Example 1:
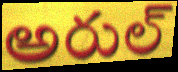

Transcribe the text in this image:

అరుల్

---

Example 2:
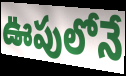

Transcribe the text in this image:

ఊపులోనే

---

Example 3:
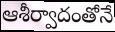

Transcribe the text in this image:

ఆశీర్వాదంతోనే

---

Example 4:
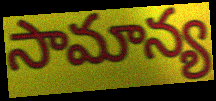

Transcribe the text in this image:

సామాన్య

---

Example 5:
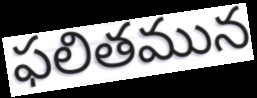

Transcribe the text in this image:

ఫలితమున